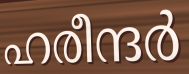
ഹരീന്ദർ